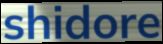
shidore